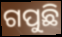
ଗପୁଛି